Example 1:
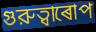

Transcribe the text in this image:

গুৰুত্বাৰোপ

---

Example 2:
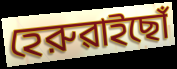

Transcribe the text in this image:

হেৰুৱাইছোঁ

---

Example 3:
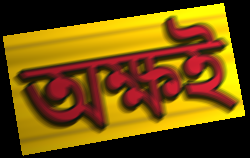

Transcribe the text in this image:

অক্ষই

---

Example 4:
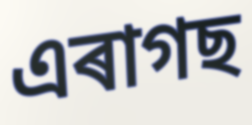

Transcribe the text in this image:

এৰাগছ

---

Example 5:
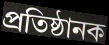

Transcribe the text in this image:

প্ৰতিষ্ঠানক